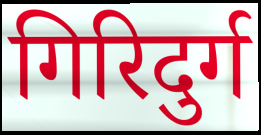
गिरिदुर्ग